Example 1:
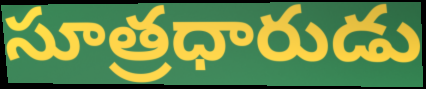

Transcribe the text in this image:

సూత్రధారుడు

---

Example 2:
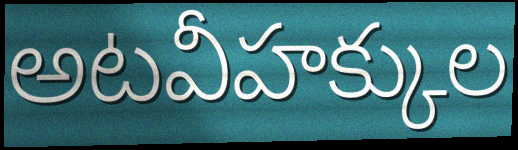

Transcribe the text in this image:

అటవీహక్కుల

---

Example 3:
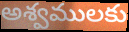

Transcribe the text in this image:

అశ్వములకు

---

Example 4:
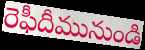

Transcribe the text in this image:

రెఫీదీమునుండి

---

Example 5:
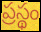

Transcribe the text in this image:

ప్రస్థం